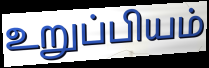
உறுப்பியம்